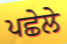
ਪਛੇਲੇ